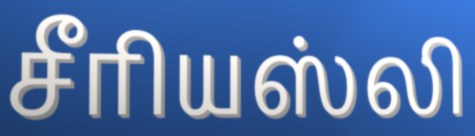
சீரியஸ்லி